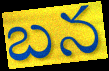
బన